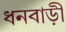
ধনবাড়ী